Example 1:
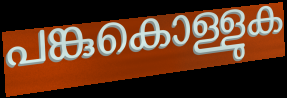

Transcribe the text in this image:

പങ്കുകൊള്ളുക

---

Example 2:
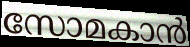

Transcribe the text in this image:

സോമകാൻ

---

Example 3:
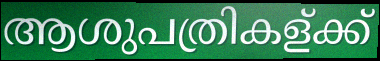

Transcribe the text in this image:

ആശുപത്രികള്ക്ക്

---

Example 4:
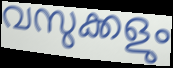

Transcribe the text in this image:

വസുക്കളും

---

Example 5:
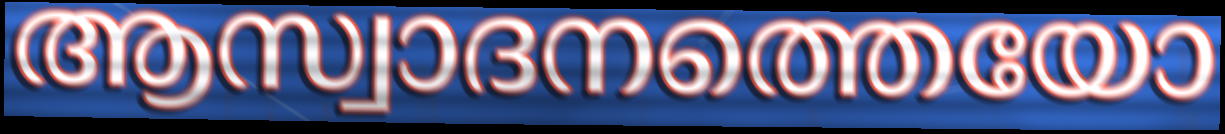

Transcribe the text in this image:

ആസ്വാദനത്തെയോ